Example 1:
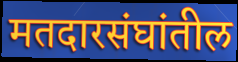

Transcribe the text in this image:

मतदारसंघांतील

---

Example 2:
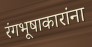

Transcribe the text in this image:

रंगभूषाकारांना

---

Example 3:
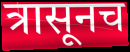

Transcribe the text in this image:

त्रासूनच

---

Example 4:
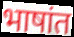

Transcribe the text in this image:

भाषांत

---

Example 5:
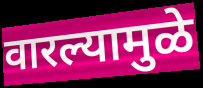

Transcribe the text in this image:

वारल्यामुळे